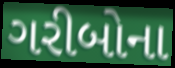
ગરીબોના